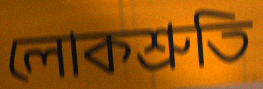
লোকশ্ৰুতি